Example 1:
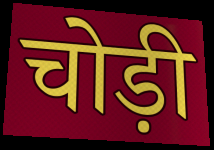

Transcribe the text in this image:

चोड़ी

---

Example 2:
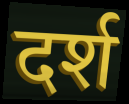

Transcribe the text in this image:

दर्श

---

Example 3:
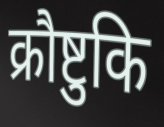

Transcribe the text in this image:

क्रौष्टुकि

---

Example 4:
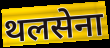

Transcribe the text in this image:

थलसेना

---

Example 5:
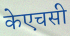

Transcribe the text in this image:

केएचसी